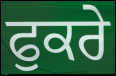
ਫੁਕਰੇ